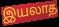
இயலாத